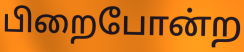
பிறைபோன்ற